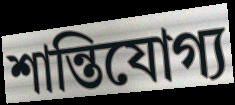
শান্তিযোগ্য